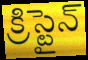
క్రిస్టైన్